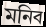
মনিব